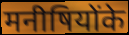
मनीषियोंके